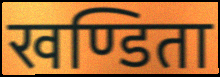
खण्डिता